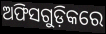
ଅଫିସଗୁଡ଼ିକରେ